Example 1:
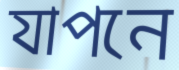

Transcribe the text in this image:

যাপনে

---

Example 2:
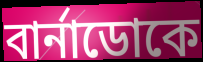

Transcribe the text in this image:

বার্নাডোকে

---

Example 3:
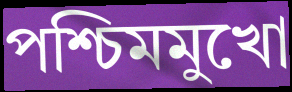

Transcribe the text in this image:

পশ্চিমমুখো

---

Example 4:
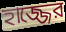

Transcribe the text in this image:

হাজ্জের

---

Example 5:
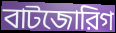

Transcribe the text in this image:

বাটজোরিগ